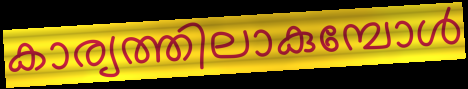
കാര്യത്തിലാകുമ്പോൾ